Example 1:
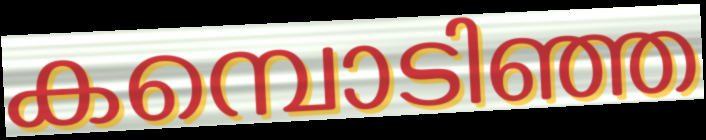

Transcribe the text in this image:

കമ്പൊടിഞ്ഞ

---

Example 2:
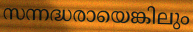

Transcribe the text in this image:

സന്നദ്ധരായെങ്കിലും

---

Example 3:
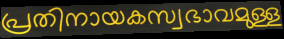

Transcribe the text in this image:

പ്രതിനായകസ്വഭാവമുള്ള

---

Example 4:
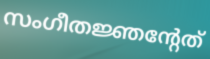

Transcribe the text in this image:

സംഗീതജ്ഞന്റേത്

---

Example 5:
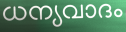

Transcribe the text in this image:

ധന്യവാദം